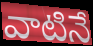
వాటినే